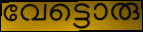
വേട്ടൊരു